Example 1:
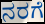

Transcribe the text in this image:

ನರಗೆ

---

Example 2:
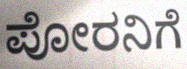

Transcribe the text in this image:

ಪೋರನಿಗೆ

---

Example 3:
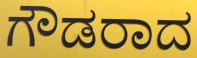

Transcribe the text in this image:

ಗೌಡರಾದ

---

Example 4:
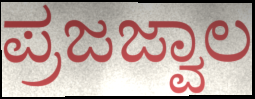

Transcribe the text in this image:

ಪ್ರಜಜ್ವಾಲ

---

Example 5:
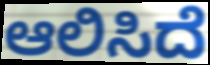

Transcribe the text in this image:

ಆಲಿಸಿದೆ